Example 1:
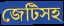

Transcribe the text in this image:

জেটিসহ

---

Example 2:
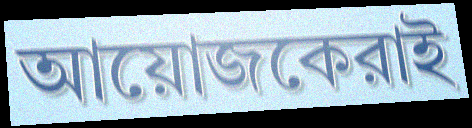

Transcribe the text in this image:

আয়োজকেরাই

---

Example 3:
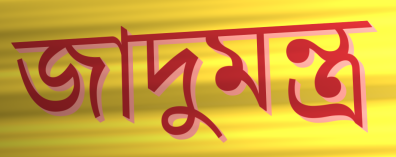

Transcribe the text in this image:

জাদুমন্ত্র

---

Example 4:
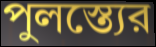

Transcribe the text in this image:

পুলস্ত্যের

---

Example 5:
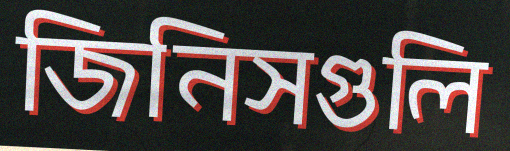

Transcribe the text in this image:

জিনিসগুলি